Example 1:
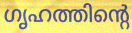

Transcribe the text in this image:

ഗൃഹത്തിന്റെ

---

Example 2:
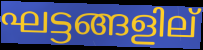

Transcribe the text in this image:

ഘട്ടങ്ങളില്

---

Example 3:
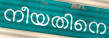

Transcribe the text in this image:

നീയതിനെ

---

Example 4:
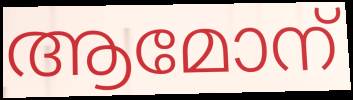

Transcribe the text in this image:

ആമോന്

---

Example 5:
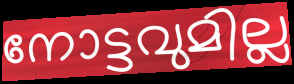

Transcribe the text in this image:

നോട്ടവുമില്ല